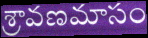
శ్రావణమాసం